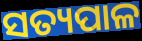
ସତ୍ୟପାଳ